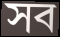
সব